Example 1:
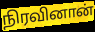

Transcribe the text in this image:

நிரவினான்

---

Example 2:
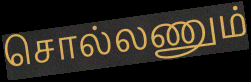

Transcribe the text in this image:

சொல்லணும்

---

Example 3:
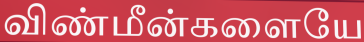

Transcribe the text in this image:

விண்மீன்களையே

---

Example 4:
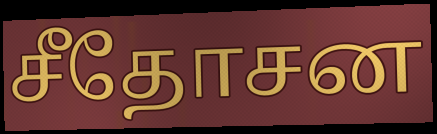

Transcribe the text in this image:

சீதோசன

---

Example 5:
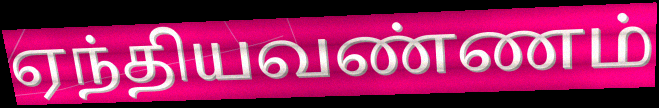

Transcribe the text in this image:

ஏந்தியவண்ணம்